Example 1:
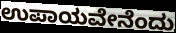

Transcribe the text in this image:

ಉಪಾಯವೇನೆಂದು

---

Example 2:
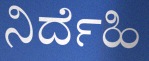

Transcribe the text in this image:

ನಿರ್ದೆಹಿ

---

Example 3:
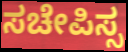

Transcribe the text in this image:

ಸಚೇಪಿಸ್ಸ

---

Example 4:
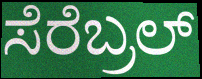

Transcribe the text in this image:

ಸೆರೆಬ್ರಲ್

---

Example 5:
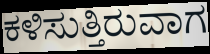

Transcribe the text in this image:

ಕಳಿಸುತ್ತಿರುವಾಗ